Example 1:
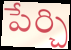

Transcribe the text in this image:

పేర్చి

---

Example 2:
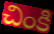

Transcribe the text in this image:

చింకి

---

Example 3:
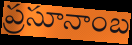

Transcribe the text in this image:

ప్రసూనాంబ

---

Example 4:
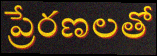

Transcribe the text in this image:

ప్రేరణలతో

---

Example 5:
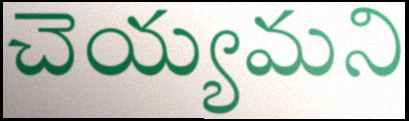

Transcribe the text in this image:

చెయ్యమని